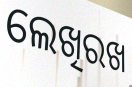
ଲେଖିରଖ